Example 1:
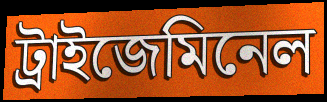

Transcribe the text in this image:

ট্ৰাইজেমিনেল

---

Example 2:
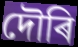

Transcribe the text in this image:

দৌৰি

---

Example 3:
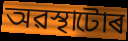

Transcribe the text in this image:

অৱস্থাটোৰ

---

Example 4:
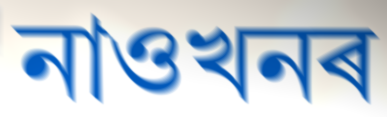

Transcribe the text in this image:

নাওখনৰ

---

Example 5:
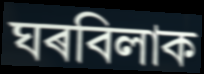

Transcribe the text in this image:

ঘৰবিলাক